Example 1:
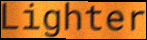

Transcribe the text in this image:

Lighter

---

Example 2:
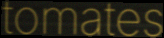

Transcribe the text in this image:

tomates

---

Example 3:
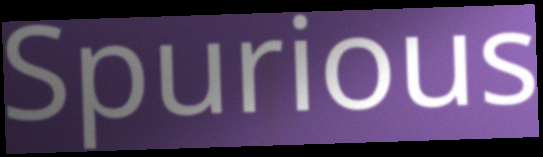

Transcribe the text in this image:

Spurious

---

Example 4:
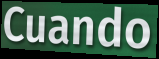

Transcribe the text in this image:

Cuando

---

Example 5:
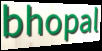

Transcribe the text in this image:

bhopal